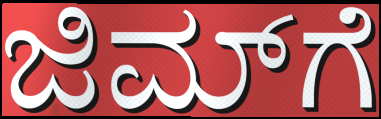
ಜಿಮ್‌ಗೆ